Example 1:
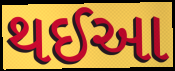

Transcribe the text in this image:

થઈઆ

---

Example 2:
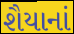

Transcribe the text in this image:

શૈયાનાં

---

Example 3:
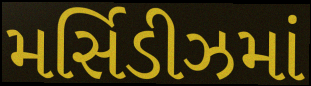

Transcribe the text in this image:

મર્સિડીઝમાં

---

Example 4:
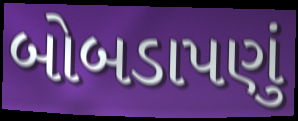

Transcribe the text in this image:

બોબડાપણું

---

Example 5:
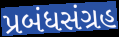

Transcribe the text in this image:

પ્રબંધસંગ્રહ